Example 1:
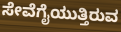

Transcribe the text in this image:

ಸೇವೆಗೈಯುತ್ತಿರುವ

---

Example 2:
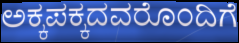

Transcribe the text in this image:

ಅಕ್ಕಪಕ್ಕದವರೊಂದಿಗೆ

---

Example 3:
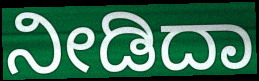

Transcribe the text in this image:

ನೀಡಿದಾ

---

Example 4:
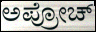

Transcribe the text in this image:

ಅಪ್ರೋಚ್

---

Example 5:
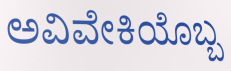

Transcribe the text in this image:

ಅವಿವೇಕಿಯೊಬ್ಬ